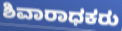
ಶಿವಾರಾಧಕರು